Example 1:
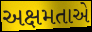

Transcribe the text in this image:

અક્ષમતાએ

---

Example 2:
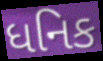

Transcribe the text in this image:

ધનિક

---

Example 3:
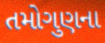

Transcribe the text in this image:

તમોગુણના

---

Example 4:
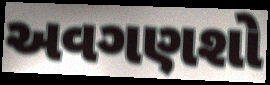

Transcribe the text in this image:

અવગણશો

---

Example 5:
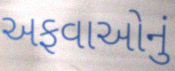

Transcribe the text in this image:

અફવાઓનું